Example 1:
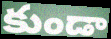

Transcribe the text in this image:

కుండా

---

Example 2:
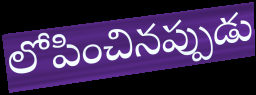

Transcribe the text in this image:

లోపించినప్పుడు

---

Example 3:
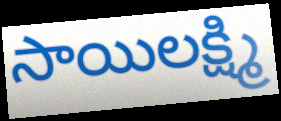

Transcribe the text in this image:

సాయిలక్ష్మి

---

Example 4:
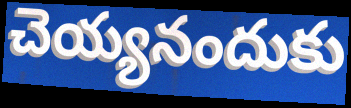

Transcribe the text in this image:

చెయ్యనందుకు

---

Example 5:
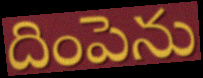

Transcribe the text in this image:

దింపెను